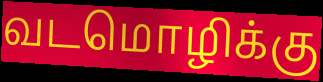
வடமொழிக்கு